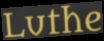
Luthe